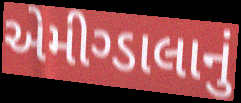
એમીગ્ડાલાનું